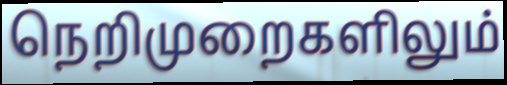
நெறிமுறைகளிலும்